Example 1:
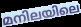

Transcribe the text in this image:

മനിലയിലെ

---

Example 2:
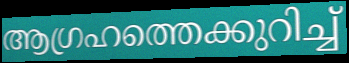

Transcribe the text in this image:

ആഗ്രഹത്തെക്കുറിച്ച്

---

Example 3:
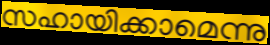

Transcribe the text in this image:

സഹായിക്കാമെന്നു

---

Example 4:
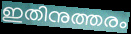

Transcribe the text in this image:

ഇതിനുത്തരം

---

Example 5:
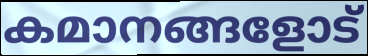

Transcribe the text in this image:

കമാനങ്ങളോട്